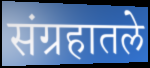
संग्रहातले